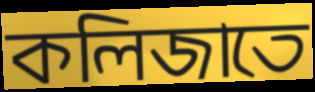
কলিজাতে